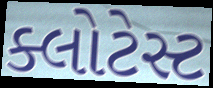
ક્લોટેસ્ટ